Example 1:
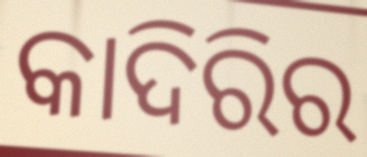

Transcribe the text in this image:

କାଦିରିର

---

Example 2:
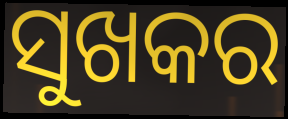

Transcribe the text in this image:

ସୁଖକର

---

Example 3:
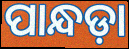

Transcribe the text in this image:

ପାନ୍ଧଡ଼ା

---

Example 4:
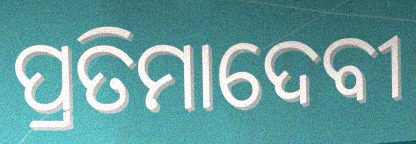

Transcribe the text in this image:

ପ୍ରତିମାଦେବୀ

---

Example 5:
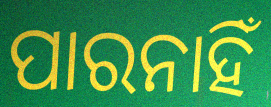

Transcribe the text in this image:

ପାରନାହିଁ